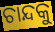
ଚାନ୍ଦକୁ